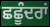
ਛਛੂੰਦਰਾਂ